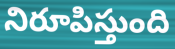
నిరూపిస్తుంది